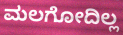
ಮಲಗೋದಿಲ್ಲ